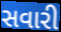
સવારી